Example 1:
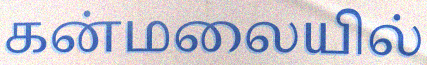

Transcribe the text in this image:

கன்மலையில்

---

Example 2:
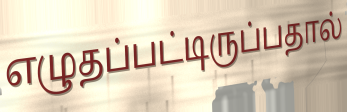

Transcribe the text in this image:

எழுதப்பட்டிருப்பதால்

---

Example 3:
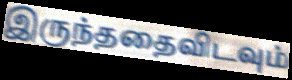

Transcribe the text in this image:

இருந்ததைவிடவும்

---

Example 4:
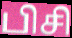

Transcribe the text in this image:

பிசி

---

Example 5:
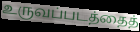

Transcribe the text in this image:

உருவப்படத்தைத்